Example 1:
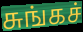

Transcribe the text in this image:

சுங்கச்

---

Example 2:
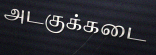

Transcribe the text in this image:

அடகுக்கடை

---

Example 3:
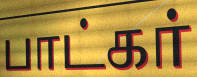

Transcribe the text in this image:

பாட்கர்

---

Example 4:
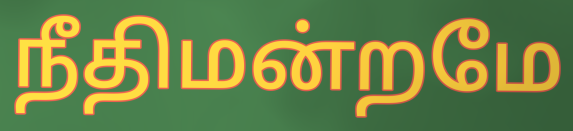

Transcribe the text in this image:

நீதிமன்றமே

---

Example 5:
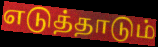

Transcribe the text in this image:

எடுத்தாடும்